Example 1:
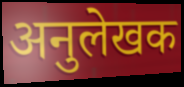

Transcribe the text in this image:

अनुलेखक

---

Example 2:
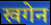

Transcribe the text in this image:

खगेन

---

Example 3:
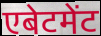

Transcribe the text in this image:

एबेटमेंट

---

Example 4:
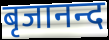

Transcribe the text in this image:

बृजानन्द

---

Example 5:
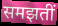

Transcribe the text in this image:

समझतीं